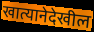
खात्यानेदेखील